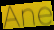
Ane